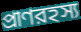
প্রাণরহস্য